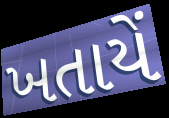
ખતાયેં